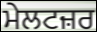
ਮੇਲਟਜ਼ਰ